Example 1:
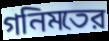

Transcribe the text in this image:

গনিমতের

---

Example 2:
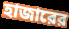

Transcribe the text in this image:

হাজারের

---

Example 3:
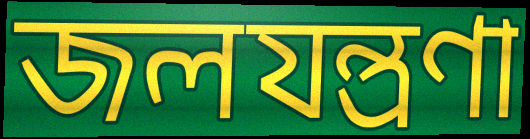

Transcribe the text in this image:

জলযন্ত্রণা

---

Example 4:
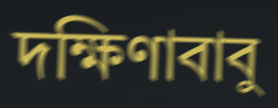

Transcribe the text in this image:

দক্ষিণাবাবু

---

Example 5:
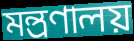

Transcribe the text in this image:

মন্ত্রণালয়